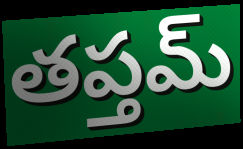
తప్తమ్